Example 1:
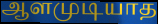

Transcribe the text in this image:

ஆளமுடியாத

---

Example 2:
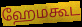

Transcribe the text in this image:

ஹேமகூட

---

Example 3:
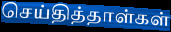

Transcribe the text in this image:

செய்தித்தாள்கள்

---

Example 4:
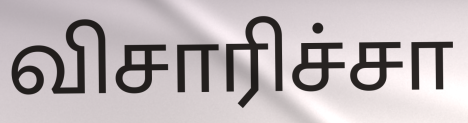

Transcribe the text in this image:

விசாரிச்சா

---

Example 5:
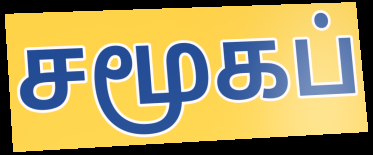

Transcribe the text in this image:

சமூகப்